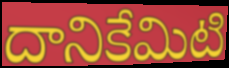
దానికేమిటి